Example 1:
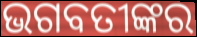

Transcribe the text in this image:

ଭଗବତୀଙ୍କର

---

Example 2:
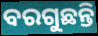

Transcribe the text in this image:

ବରଗୁଛନ୍ତି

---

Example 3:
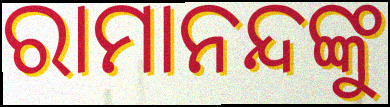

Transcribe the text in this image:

ରାମାନନ୍ଦଙ୍କୁ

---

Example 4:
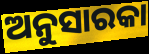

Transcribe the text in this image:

ଅନୁସାରକା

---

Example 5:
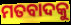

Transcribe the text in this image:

ମତବାଦକୁ